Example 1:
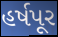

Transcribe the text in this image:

હર્ષપૂર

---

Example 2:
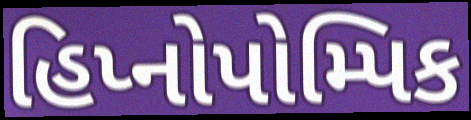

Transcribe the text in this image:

હિપ્નોપોમ્પિક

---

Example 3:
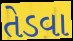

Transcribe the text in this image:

તેડવા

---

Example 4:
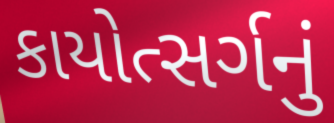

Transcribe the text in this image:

કાયોત્સર્ગનું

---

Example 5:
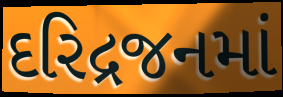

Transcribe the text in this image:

દરિદ્રજનમાં